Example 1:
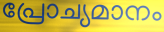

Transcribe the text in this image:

പ്രോച്യമാനം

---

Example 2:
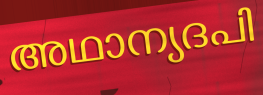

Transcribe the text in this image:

അഥാന്യദപി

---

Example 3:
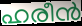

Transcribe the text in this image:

ഹരീൻ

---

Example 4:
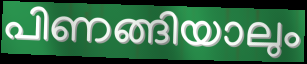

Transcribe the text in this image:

പിണങ്ങിയാലും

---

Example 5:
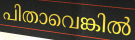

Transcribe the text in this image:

പിതാവെങ്കിൽ